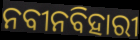
ନବୀନବିହାରୀ